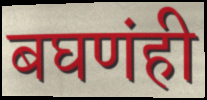
बघणंही